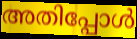
അതിപ്പോൾ